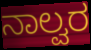
ನಾಲ್ವರ